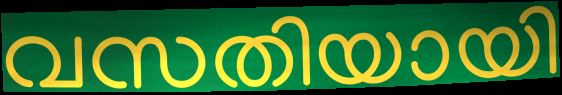
വസതിയായി